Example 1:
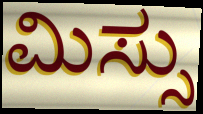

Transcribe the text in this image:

ಮಿಸ್ಸು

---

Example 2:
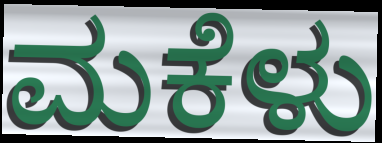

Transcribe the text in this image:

ಮಕೆಳು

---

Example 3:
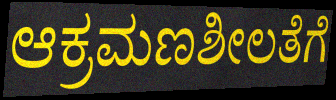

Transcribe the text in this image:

ಆಕ್ರಮಣಶೀಲತೆಗೆ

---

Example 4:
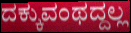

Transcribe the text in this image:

ದಕ್ಕುವಂಥದ್ದಲ್ಲ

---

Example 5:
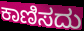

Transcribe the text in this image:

ಕಾಣಿಸದು